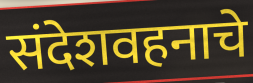
संदेशवहनाचे